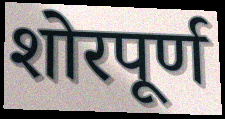
शोरपूर्ण